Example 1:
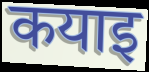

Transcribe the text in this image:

कयाइ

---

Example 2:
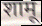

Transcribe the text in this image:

शामू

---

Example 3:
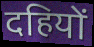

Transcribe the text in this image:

दहियों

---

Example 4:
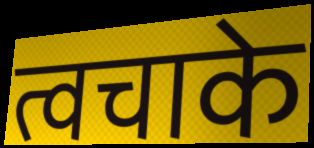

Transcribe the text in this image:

त्वचाके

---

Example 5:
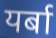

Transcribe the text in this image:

यर्बा